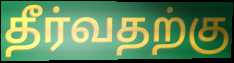
தீர்வதற்கு